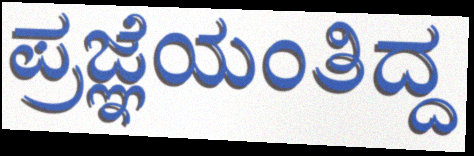
ಪ್ರಜ್ಞೆಯಂತಿದ್ದ